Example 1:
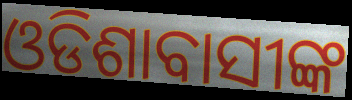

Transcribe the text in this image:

ଓଡିଶାବାସୀଙ୍କ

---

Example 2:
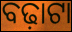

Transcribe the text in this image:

ବଢ଼ାଟା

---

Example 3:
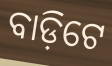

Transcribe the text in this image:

ବାଡ଼ିଟେ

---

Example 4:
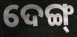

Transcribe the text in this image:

ଦେଙ୍ଗ୍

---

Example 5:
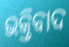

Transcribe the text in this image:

ଭକ୍ତିବାଦ